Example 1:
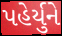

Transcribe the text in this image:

પહેર્યુને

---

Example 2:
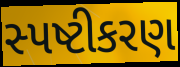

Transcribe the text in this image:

સ્પષ્ટીકરણ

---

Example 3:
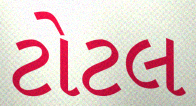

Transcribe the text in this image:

ટોટલ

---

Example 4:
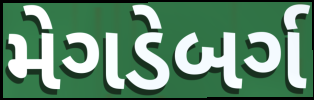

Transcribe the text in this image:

મેગડેબર્ગ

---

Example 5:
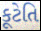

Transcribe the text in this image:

કૂટેતિ